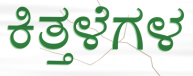
ಕಿತ್ತಳೆಗಳ